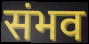
संभव